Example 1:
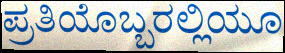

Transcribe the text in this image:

ಪ್ರತಿಯೊಬ್ಬರಲ್ಲಿಯೂ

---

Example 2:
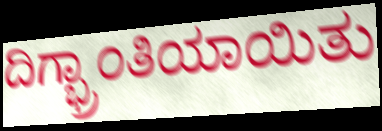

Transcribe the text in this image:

ದಿಗ್ಭ್ರಾಂತಿಯಾಯಿತು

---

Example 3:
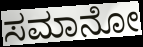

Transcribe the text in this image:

ಸಮಾನೋ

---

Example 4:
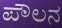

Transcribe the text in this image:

ಪೌಲನ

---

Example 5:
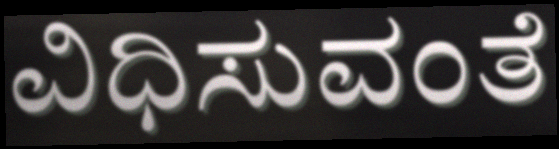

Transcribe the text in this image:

ವಿಧಿಸುವಂತೆ